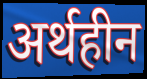
अर्थहीन